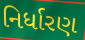
નિર્ધારણ